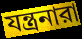
যন্ত্রনারা